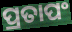
ପ୍ରତାପଂ